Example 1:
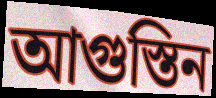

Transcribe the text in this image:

আগুস্তিন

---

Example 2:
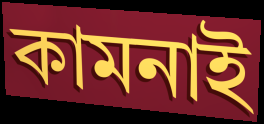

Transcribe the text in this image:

কামনাই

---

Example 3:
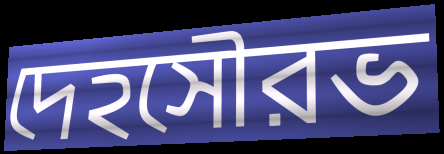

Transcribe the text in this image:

দেহসৌরভ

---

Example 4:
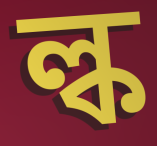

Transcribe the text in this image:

ল্ক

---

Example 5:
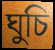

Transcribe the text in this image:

ঘুচি